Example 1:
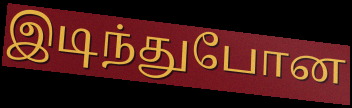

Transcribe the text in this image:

இடிந்துபோன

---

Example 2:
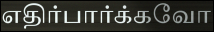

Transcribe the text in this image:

எதிர்பார்க்கவோ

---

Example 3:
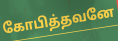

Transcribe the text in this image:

கோபித்தவனே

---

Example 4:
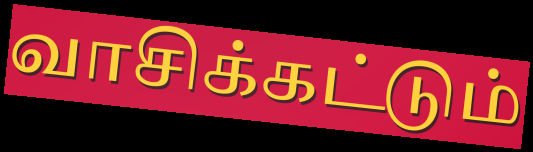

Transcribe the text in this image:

வாசிக்கட்டும்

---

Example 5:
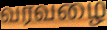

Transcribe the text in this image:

வரவழை